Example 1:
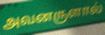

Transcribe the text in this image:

அவனருளால்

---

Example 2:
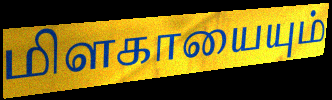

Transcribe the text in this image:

மிளகாயையும்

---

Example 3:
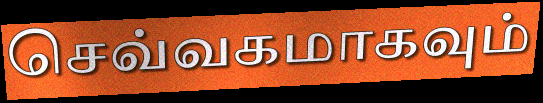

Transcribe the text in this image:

செவ்வகமாகவும்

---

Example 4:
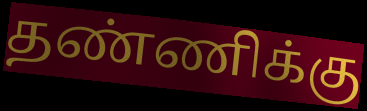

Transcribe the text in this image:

தண்ணிக்கு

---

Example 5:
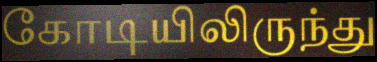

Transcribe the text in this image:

கோடியிலிருந்து